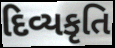
દિવ્યકૃતિ